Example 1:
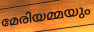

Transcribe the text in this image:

മേരിയമ്മയും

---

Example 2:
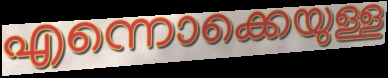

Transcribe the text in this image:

എന്നൊക്കെയുള്ള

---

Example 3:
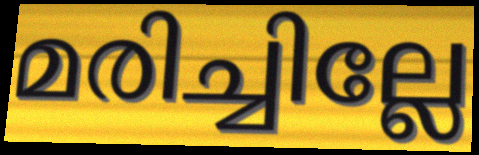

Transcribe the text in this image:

മരിച്ചില്ലേ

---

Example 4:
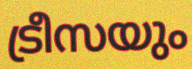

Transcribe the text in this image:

ട്രീസയും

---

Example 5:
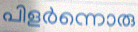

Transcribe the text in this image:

പിളർന്നൊരു